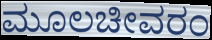
ಮೂಲಚೀವರಂ